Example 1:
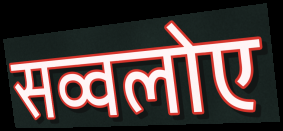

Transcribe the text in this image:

सव्वलोए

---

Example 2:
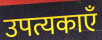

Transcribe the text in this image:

उपत्यकाएँ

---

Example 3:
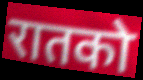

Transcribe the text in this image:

रातको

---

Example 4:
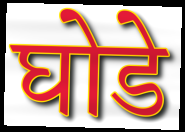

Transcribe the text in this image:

घोडे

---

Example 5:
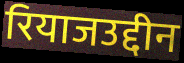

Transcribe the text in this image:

रियाजउद्दीन